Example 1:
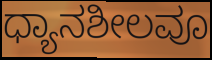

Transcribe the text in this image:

ಧ್ಯಾನಶೀಲವೂ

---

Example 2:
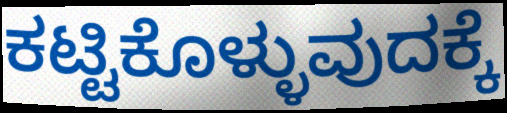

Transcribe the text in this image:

ಕಟ್ಟಿಕೊಳ್ಳುವುದಕ್ಕೆ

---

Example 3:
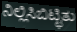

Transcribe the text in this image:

ನಿಲ್ಲಿಸಿಬಿಟ್ಟಿತು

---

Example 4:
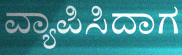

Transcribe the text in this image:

ವ್ಯಾಪಿಸಿದಾಗ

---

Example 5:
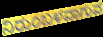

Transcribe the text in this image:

ನಿರುಂಬಳವಾಗುವ